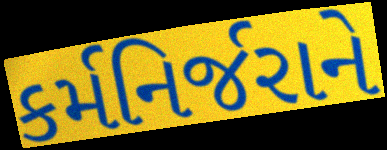
કર્મનિર્જરાને